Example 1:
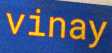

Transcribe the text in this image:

vinay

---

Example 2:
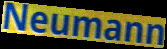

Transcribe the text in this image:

Neumann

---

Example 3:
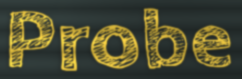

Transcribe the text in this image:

Probe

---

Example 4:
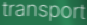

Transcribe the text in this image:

transport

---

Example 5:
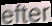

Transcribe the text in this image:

efter